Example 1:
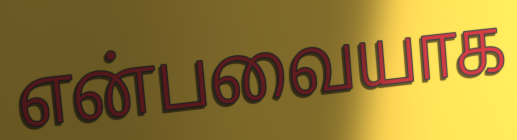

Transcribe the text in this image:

என்பவையாக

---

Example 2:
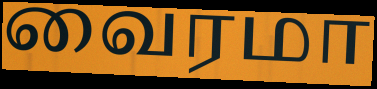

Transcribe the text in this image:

வைரமா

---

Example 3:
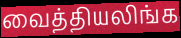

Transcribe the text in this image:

வைத்தியலிங்க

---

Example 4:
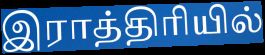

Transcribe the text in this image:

இராத்திரியில்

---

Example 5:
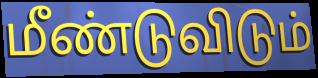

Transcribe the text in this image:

மீண்டுவிடும்